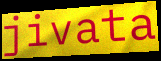
jivata